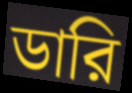
ডারি